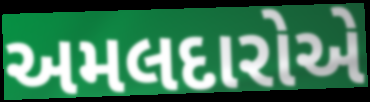
અમલદારોએ